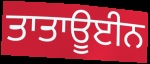
ਤਾਤਾਊਈਨ